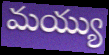
మయ్యు